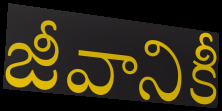
జీవానికీ